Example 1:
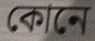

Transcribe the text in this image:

কোনে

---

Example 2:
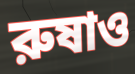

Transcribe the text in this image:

রুষাও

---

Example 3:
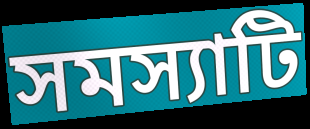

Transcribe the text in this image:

সমস্যাটি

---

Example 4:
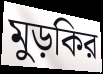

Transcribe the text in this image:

মুড়কির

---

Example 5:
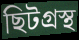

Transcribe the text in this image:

ছিটগ্রস্থ